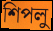
শিপলু